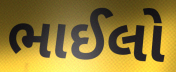
ભાઈલો